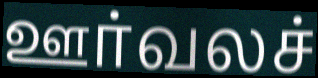
ஊர்வலச்